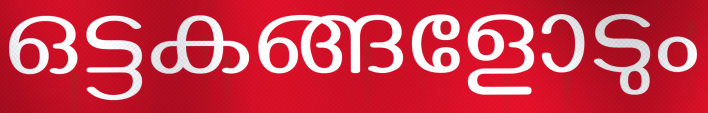
ഒട്ടകങ്ങളോടും